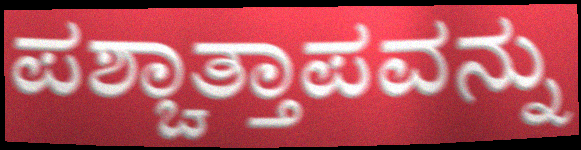
ಪಶ್ಚಾತ್ತಾಪವನ್ನು